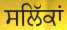
ਸਲਿੱਕਾਂ